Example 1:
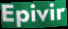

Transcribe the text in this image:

Epivir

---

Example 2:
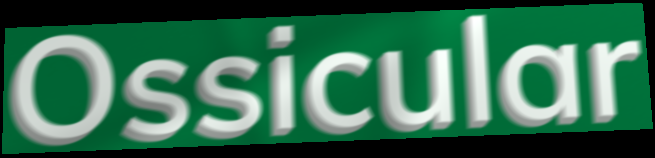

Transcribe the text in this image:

Ossicular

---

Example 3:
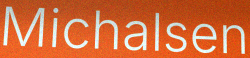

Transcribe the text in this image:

Michalsen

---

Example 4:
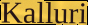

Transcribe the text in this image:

Kalluri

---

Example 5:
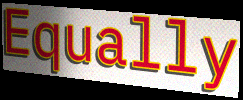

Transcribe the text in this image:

Equally